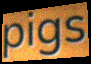
pigs